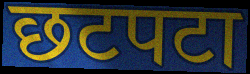
छटपटा